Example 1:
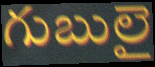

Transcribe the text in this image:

గుబులై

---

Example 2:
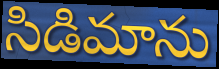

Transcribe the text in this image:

సిడిమాను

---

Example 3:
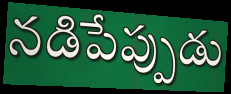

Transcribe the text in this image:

నడిపేప్పుడు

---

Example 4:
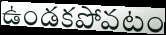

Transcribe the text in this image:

ఉండకపోవటం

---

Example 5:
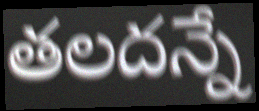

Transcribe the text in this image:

తలదన్నే